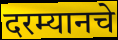
दरम्यानचे